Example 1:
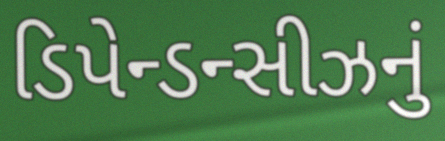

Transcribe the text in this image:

ડિપેન્ડન્સીઝનું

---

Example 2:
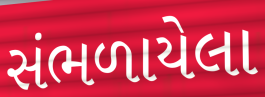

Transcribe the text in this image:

સંભળાયેલા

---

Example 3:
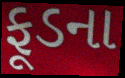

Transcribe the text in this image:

ફૂડના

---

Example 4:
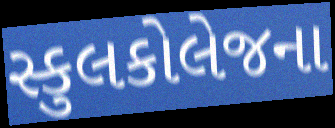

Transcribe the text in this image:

સ્કુલકોલેજના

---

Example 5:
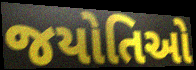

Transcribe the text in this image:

જયોતિઓ